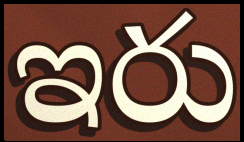
ఇరు